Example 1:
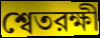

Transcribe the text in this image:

শ্বেতরক্ষী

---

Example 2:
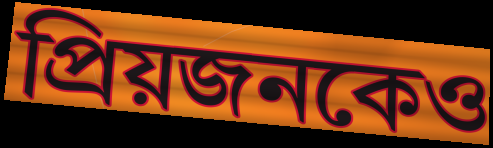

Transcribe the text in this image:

প্রিয়জনকেও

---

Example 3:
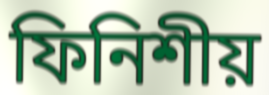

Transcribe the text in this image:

ফিনিশীয়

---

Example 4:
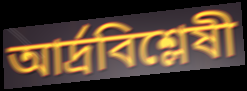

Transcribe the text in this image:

আর্দ্রবিশ্লেষী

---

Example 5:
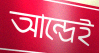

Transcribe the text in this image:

আন্দ্রেই